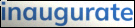
inaugurate